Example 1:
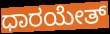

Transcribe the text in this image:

ಧಾರಯೇತ್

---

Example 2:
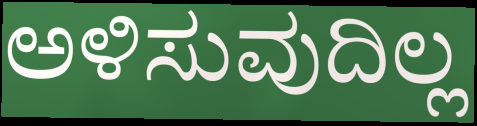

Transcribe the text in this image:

ಅಳಿಸುವುದಿಲ್ಲ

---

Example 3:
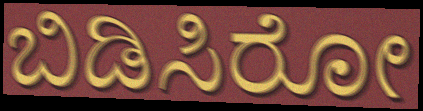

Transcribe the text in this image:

ಬಿಡಿಸಿರೋ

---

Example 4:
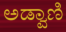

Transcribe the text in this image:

ಅಡ್ವಾಣಿ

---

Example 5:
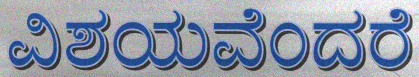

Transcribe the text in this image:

ವಿಶಯವೆಂದರೆ